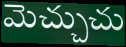
మెచ్చుచు